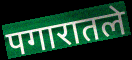
पगारातले